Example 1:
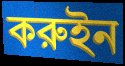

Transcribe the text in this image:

করুইন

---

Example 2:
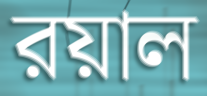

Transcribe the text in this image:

রয়াল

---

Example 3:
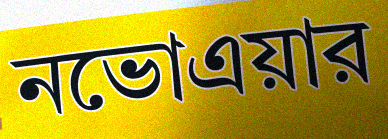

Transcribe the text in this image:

নভোএয়ার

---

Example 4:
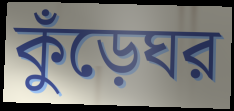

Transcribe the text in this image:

কুঁড়েঘর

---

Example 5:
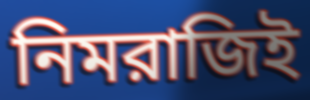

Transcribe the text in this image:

নিমরাজিই